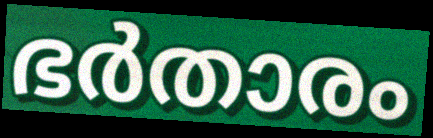
ഭർതാരം